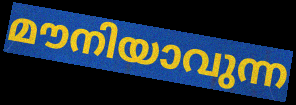
മൗനിയാവുന്ന